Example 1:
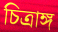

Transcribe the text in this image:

চিত্রাঙ্গ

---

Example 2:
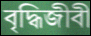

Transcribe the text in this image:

বৃদ্ধিজীবী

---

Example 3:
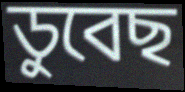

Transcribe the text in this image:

ডুবেছ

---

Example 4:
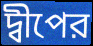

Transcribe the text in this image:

দ্বীপের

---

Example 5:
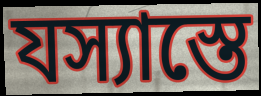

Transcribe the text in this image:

যস্যাস্তে